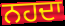
ਨਹਦਾ